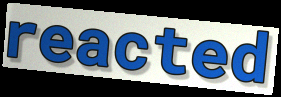
reacted